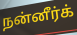
நன்னீர்க்